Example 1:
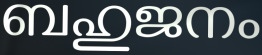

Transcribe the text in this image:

ബഹുജനം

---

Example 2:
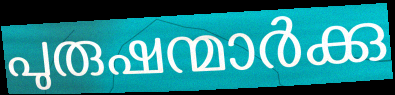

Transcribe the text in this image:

പുരുഷന്മാർക്കു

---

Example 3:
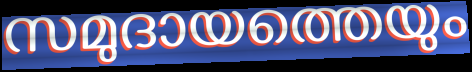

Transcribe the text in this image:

സമുദായത്തെയും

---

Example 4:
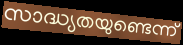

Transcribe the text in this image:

സാദ്ധ്യതയുണ്ടെന്ന്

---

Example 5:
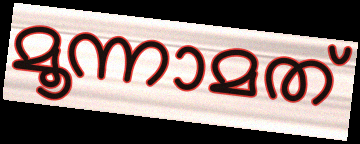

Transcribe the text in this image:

മൂന്നാമത്